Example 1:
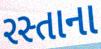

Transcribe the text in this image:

રસ્તાના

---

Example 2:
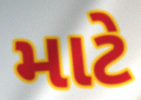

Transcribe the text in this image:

માટે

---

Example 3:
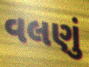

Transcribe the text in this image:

વલણું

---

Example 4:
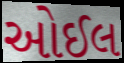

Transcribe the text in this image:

ઓઈલ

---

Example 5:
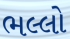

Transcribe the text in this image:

ભલ્લો